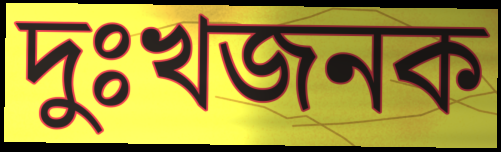
দুঃখজনক